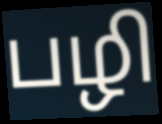
பழி